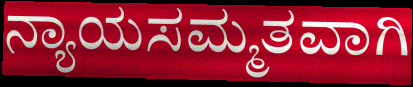
ನ್ಯಾಯಸಮ್ಮತವಾಗಿ